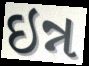
ઇન્ન